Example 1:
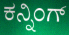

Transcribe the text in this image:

ಕನ್ನಿಂಗ್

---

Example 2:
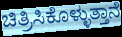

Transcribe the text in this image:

ಚಿತ್ರಿಸಿಕೊಳ್ಳುತ್ತಾನೆ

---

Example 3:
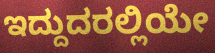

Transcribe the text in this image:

ಇದ್ದುದರಲ್ಲಿಯೇ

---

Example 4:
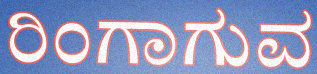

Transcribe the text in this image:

ರಿಂಗಾಗುವ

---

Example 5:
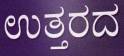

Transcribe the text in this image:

ಉತ್ತರದ